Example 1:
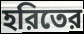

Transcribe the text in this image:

হরিতের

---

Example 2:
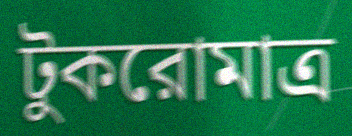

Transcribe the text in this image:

টুকরোমাত্র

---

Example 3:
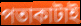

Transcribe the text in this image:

পতাকাটাই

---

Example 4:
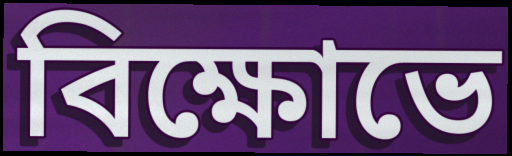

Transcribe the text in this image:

বিক্ষোভে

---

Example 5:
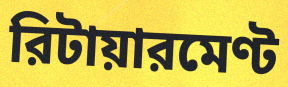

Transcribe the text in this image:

রিটায়ারমেণ্ট